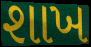
શાખ